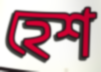
হেশ